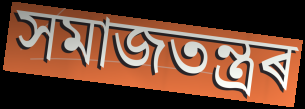
সমাজতন্ত্ৰৰ